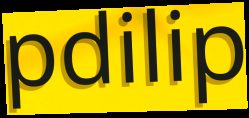
pdilip